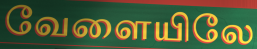
வேளையிலே